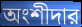
অংশীদার